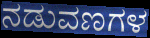
ನಡುವಣಗಳ